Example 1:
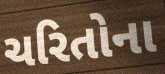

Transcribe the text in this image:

ચરિતોના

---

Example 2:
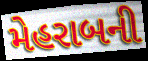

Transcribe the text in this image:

મેહરાબની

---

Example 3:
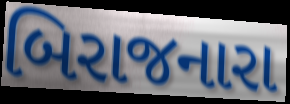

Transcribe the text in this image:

બિરાજનારા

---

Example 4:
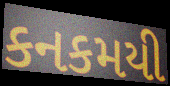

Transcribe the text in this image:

કનકમયી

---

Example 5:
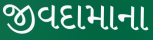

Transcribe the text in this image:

જીવદામાના